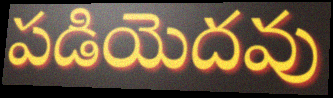
పడియెదవు